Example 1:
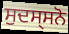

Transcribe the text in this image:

ਸੁਦਸ੍ਸਨੋ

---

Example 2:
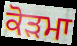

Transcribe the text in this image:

ਕੋੜਮਾ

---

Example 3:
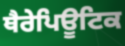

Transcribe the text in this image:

ਥੈਰੇਪਿਊਟਿਕ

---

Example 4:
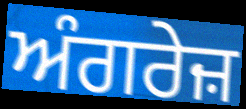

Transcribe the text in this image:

ਅੰਗਰੇਜ਼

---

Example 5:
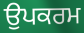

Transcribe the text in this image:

ਉਪਕਰਮ